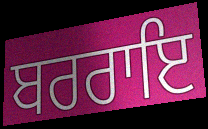
ਬਰਰਾਇ